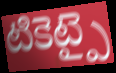
టికెట్పై